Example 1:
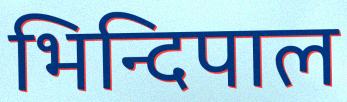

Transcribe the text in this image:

भिन्दिपाल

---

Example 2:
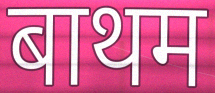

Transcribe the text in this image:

बाथम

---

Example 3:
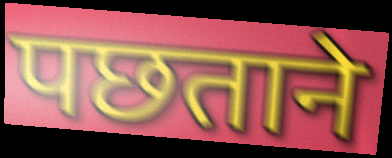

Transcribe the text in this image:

पछताने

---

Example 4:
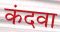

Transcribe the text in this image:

कंदवा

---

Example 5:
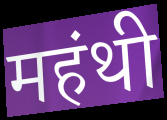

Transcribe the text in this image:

महंथी